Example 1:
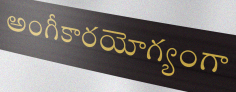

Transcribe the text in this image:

అంగీకారయోగ్యంగా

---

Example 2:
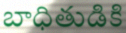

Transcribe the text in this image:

బాధితుడికి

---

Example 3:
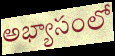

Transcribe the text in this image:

అభ్యాసంలో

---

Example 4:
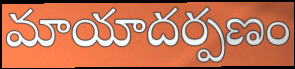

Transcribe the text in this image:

మాయాదర్పణం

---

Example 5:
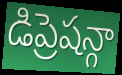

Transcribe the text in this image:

డిప్రెషన్గా